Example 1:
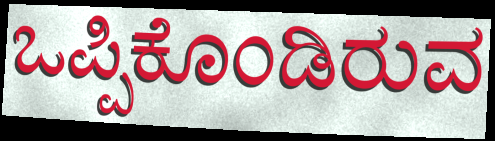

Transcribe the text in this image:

ಒಪ್ಪಿಕೊಂಡಿರುವ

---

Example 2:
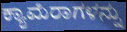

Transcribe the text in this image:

ಕ್ಯಾಮೆರಾಗಳನ್ನು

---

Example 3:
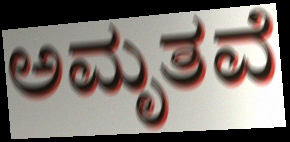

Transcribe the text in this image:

ಅಮೃತವೆ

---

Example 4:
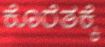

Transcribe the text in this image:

ಕೊರೆತಕ್ಕೆ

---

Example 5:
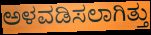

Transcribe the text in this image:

ಅಳವಡಿಸಲಾಗಿತ್ತು